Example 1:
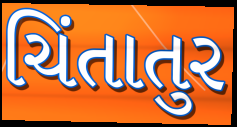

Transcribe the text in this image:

ચિંતાતુર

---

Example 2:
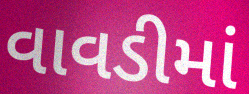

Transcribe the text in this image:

વાવડીમાં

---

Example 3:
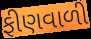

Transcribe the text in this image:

ફીણવાળી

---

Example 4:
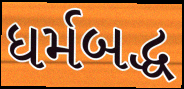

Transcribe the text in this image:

ધર્મબદ્ધ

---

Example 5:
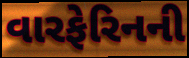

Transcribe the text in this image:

વારફેરિનની